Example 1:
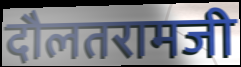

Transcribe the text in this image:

दौलतरामजी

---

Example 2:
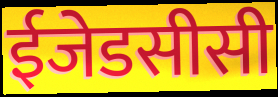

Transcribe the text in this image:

ईजेडसीसी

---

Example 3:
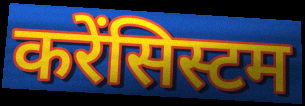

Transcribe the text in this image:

करेंसिस्टम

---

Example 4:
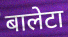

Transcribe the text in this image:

बालेटा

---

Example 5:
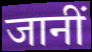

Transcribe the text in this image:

जानीं